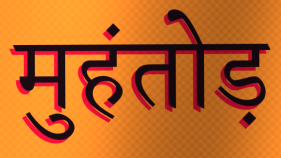
मुहंतोड़